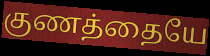
குணத்தையே